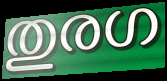
തുരഗ